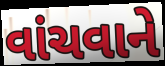
વાંચવાને